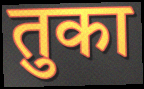
तुका